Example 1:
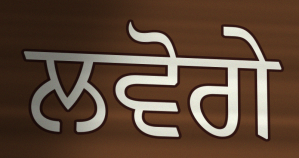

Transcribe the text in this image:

ਲਵੋਗੇ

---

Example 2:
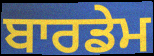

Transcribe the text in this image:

ਬਾਰਡੇਮ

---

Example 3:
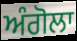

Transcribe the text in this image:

ਅੰਗੋਲਾ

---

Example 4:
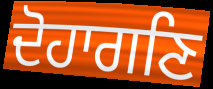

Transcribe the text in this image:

ਦੋਹਾਗਣਿ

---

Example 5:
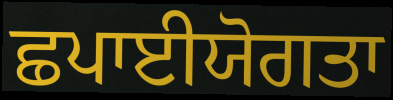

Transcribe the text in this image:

ਛਪਾਈਯੋਗਤਾ